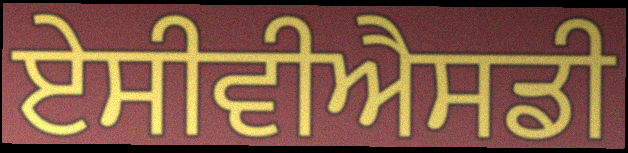
ਏਸੀਵੀਐਸਡੀ